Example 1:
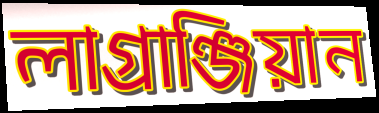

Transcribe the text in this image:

লাগ্ৰাঞ্জিয়ান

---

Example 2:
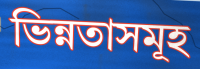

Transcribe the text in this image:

ভিন্নতাসমূহ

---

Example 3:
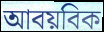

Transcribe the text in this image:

আবয়বিক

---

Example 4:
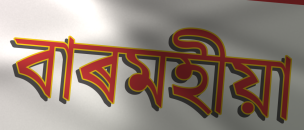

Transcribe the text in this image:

বাৰমহীয়া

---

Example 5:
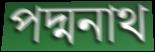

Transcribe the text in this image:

পদ্মনাথ